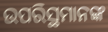
ଉପରିସ୍ଥମାନଙ୍କ